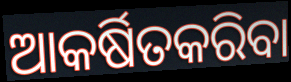
ଆକର୍ଷିତକରିବା